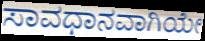
ಸಾವಧಾನವಾಗಿಯೇ